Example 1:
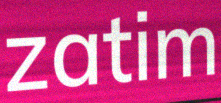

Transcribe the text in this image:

zatim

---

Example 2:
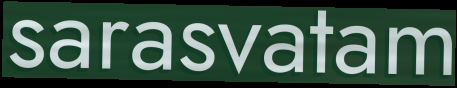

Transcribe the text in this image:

sarasvatam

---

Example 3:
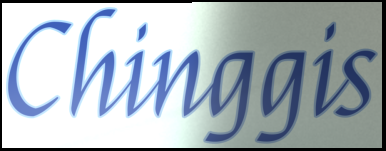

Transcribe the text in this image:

Chinggis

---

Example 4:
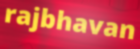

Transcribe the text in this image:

rajbhavan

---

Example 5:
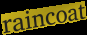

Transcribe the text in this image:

raincoat